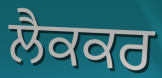
ਲੈਕਕਰ